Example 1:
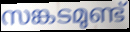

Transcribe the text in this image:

സങ്കടമുണ്ട്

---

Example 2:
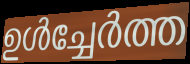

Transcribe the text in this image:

ഉൾച്ചേർത്ത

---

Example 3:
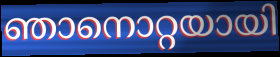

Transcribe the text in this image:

ഞാനൊറ്റയായി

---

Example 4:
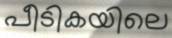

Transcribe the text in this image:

പീടികയിലെ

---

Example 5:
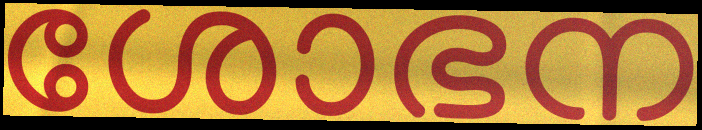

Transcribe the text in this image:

ശോഭന